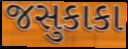
જસુકાકા